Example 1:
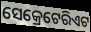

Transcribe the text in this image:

ସେକ୍ରେଟେରିଏଟ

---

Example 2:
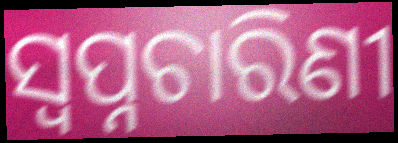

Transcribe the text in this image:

ସ୍ୱପ୍ନଚାରିଣୀ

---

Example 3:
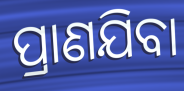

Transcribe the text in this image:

ପ୍ରାଣଯିବା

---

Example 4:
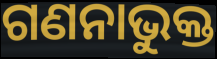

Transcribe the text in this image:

ଗଣନାଭୁକ୍ତ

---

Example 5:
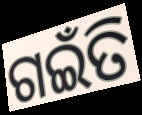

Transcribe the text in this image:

ଗଇଁତି